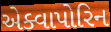
એક્વાપોરિન